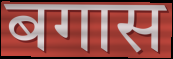
बगास